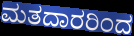
ಮತದಾರರಿಂದ